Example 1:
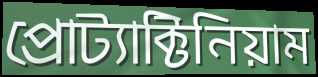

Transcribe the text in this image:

প্রোট্যাক্টিনিয়াম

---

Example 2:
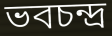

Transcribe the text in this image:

ভবচন্দ্র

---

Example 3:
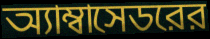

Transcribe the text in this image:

অ্যাম্বাসেডরের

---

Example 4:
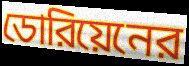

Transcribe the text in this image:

ডোরিয়েনের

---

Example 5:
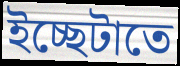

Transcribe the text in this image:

ইচ্ছেটাতে